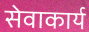
सेवाकार्य